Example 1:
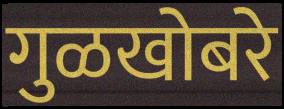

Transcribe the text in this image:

गुळखोबरे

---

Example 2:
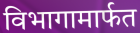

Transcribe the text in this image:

विभागामार्फत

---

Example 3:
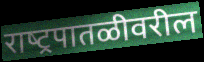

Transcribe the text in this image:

राष्ट्रपातळीवरील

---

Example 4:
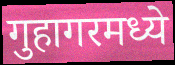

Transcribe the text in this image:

गुहागरमध्ये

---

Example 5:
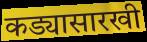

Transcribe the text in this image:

कड्यासारखी